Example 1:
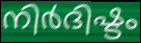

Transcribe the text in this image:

നിർദിഷ്ടം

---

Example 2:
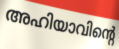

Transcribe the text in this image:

അഹിയാവിന്റെ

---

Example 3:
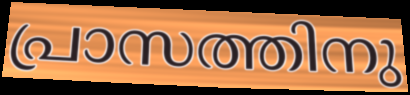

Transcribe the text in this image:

പ്രാസത്തിനു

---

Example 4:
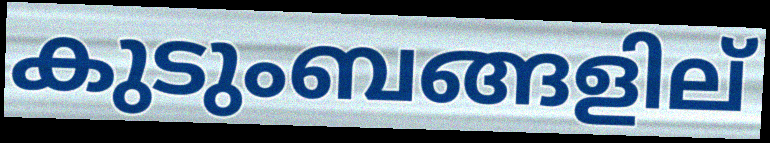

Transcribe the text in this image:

കുടുംബങ്ങളില്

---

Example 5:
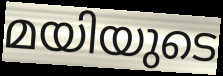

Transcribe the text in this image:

മയിയുടെ